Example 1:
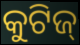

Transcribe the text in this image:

କୁଟିଜ୍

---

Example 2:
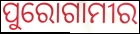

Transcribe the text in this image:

ପୁରୋଗାମୀର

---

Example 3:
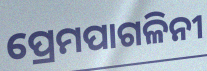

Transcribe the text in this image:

ପ୍ରେମପାଗଳିନୀ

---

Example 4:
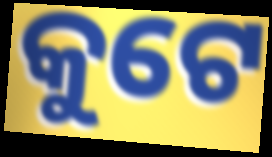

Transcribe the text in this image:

କୁଟେ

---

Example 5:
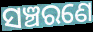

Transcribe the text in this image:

ସଞ୍ଚରଣେ